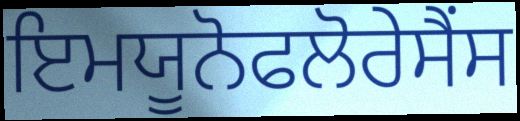
ਇਮਯੂਨੋਫਲੋਰੇਸੈਂਸ